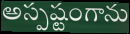
అస్పష్టంగాను